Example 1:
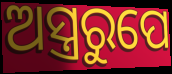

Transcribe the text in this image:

ଅସ୍ତ୍ରରୁପେ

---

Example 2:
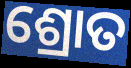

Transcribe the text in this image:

ଶ୍ରୋତ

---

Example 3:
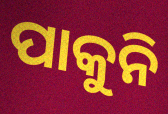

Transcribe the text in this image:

ପାକୁନି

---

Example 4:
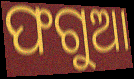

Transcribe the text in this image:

ଫଗୁଆ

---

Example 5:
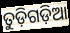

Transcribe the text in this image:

ତୁଡ଼ିଗଡ଼ିଆ